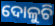
ଦୋଳୁଚି